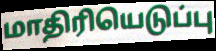
மாதிரியெடுப்பு